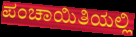
ಪಂಚಾಯಿತಿಯಲ್ಲಿ